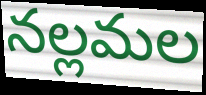
నల్లమల